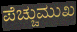
ಪೆಚ್ಚುಮುಖ